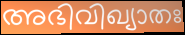
അഭിവിഖ്യാതഃ